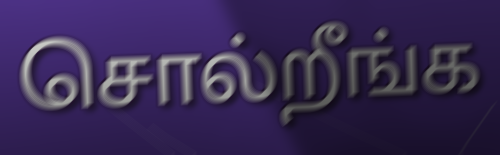
சொல்றீங்க